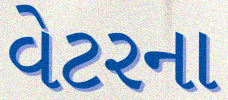
વેટરના